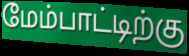
மேம்பாட்டிற்கு